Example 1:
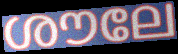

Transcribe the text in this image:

ശൗലേ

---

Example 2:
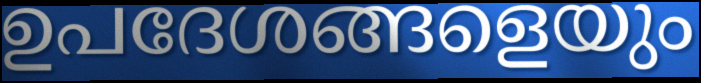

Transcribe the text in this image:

ഉപദേശങ്ങളെയും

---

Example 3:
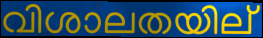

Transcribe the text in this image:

വിശാലതയില്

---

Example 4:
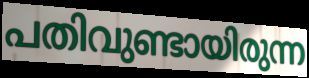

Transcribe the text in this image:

പതിവുണ്ടായിരുന്ന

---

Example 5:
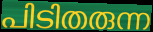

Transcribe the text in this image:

പിടിതരുന്ന